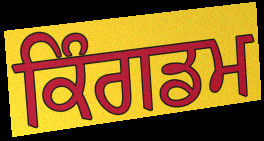
ਕਿੰਗਡਮ